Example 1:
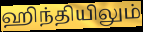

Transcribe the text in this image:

ஹிந்தியிலும்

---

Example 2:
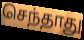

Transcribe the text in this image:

செந்தாது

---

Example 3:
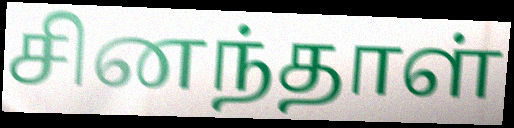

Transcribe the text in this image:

சினந்தாள்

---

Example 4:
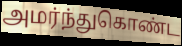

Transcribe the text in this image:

அமர்ந்துகொண்ட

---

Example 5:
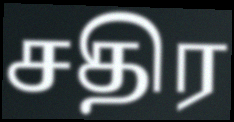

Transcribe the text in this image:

சதிர